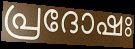
പ്രദോഷഃ